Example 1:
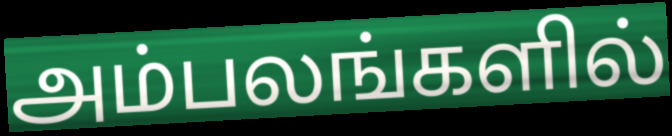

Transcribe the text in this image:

அம்பலங்களில்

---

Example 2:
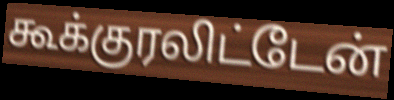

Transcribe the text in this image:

கூக்குரலிட்டேன்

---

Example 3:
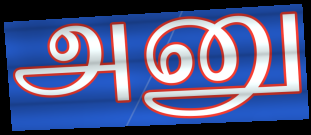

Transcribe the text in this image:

அனு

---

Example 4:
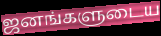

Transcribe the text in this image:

ஜனங்களுடைய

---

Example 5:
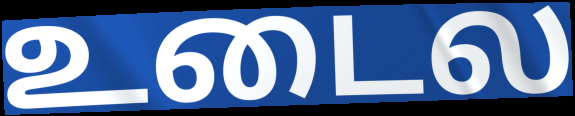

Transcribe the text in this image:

உடைல